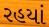
રહયાં